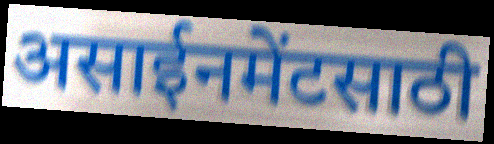
असाईनमेंटसाठी